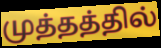
முத்தத்தில்